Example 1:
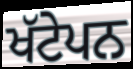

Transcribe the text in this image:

ਖੱਟੇਪਨ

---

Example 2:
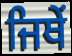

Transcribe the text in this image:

ਜਿਥੇਂ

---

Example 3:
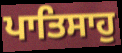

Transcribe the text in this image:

ਪਾਤਿਸਾਹੁ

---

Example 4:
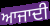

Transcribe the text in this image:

ਆਜਾਦੀ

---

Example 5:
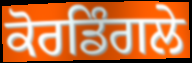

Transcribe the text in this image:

ਕੋਰਡਿੰਗਲੇ